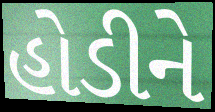
હોડીને